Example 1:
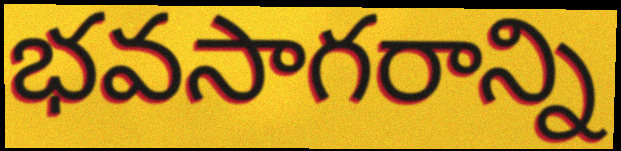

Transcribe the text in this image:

భవసాగరాన్ని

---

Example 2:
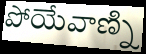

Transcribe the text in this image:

పోయేవాణ్ని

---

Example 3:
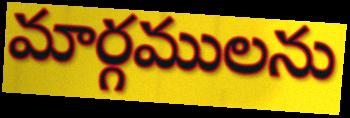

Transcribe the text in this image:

మార్గములను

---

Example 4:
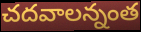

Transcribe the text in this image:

చదవాలన్నంత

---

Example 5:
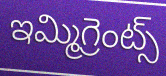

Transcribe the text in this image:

ఇమ్మిగ్రెంట్స్